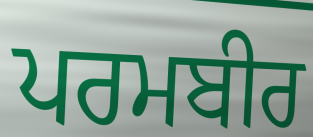
ਪਰਮਬੀਰ